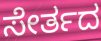
ಸೇರ್ತದ